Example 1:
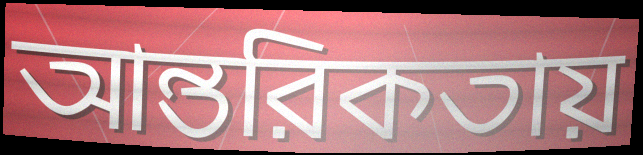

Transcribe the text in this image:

আন্তরিকতায়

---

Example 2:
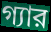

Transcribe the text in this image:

গ্যার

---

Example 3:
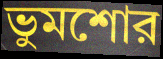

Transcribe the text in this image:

ভুমশোর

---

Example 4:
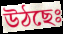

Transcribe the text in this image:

উঠছেঃ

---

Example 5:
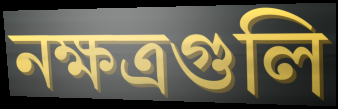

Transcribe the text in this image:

নক্ষত্রগুলি